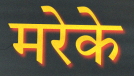
मरेके